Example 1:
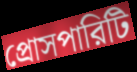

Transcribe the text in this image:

প্রোসপারিটি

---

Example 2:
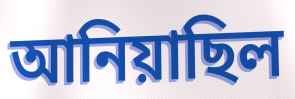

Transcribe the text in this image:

আনিয়াছিল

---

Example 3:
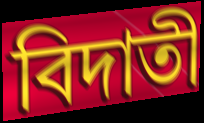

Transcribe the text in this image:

বিদাতী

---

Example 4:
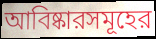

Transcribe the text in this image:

আবিষ্কারসমূহের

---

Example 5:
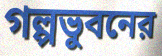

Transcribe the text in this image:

গল্পভুবনের